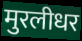
मुरलीधर